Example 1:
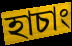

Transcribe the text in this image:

হাচাং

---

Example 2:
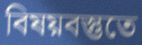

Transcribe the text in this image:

বিষয়বস্তুতে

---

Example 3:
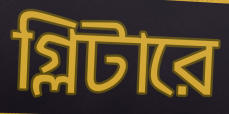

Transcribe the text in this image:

গ্লিটারে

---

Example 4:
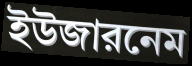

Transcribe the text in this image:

ইউজারনেম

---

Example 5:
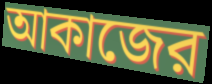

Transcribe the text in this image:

আকাজের